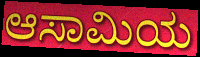
ಆಸಾಮಿಯ